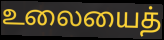
உலையைத்